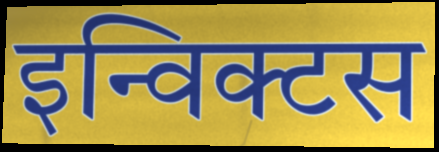
इन्विक्टस